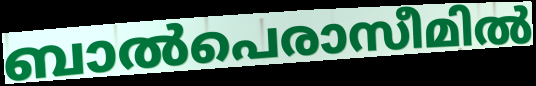
ബാൽപെരാസീമിൽ